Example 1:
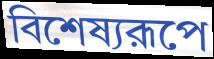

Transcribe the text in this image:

বিশেষ্যরূপে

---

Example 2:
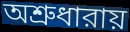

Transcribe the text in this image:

অশ্রুধারায়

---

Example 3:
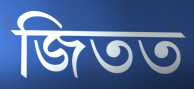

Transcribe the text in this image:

জিতত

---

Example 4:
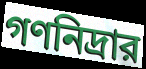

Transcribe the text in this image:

গণনিদ্রার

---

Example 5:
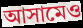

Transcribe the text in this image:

আসামেও